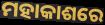
ମହାକାଶରେ